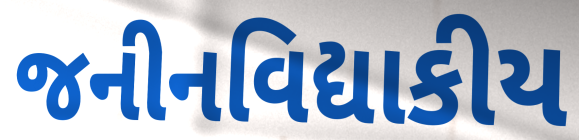
જનીનવિદ્યાકીય